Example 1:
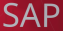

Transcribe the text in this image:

SAP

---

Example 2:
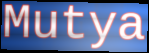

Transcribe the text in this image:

Mutya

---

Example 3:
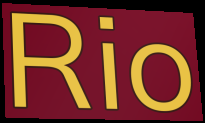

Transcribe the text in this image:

Rio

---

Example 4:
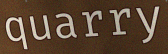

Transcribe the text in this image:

quarry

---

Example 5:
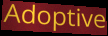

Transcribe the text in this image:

Adoptive